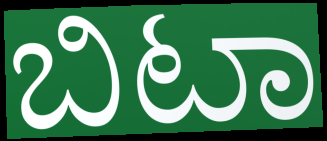
ಬಿಟಾ